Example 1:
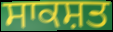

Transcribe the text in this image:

ਸਾਕਸ਼ਤ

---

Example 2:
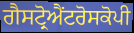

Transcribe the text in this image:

ਗੈਸਟ੍ਰੋਐਂਟਰੋਸਕੋਪੀ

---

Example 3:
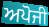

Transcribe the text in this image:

ਅਪੋਜੀ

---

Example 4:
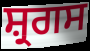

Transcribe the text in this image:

ਸ਼੍ਰਗਸ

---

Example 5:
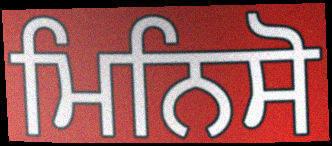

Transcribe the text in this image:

ਮਿਨਿਸੋ